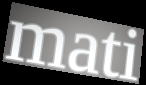
mati